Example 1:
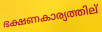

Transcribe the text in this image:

ഭക്ഷണകാര്യത്തില്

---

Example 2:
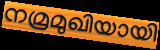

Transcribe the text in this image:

നമ്രമുഖിയായി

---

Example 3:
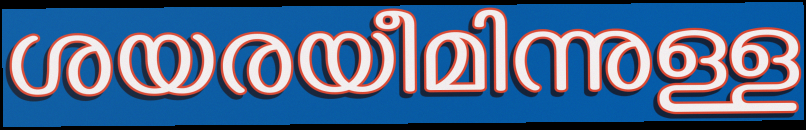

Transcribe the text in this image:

ശയരയീമിന്നുള്ള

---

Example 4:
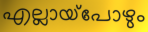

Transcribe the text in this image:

എല്ലായ്‌പോഴും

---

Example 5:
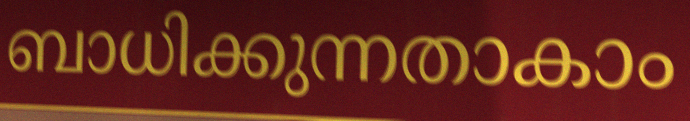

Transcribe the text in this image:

ബാധിക്കുന്നതാകാം